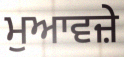
ਮੁਆਵਜ਼ੇ